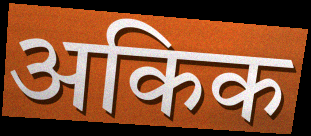
अकिक